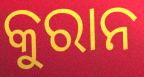
କୁରାନ